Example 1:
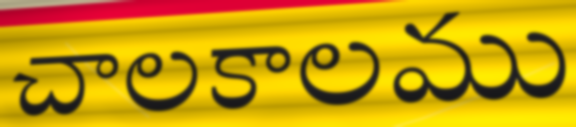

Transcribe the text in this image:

చాలకాలము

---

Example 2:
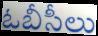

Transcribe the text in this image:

ఓబీసీలు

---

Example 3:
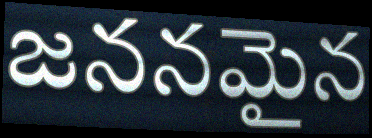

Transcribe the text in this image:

జననమైన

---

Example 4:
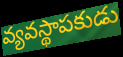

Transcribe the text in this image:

వ్యవస్థాపకుడు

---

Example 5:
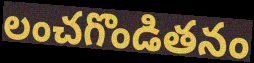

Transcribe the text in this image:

లంచగొండితనం